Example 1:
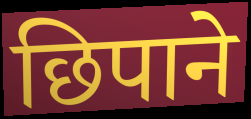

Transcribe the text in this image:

छिपाने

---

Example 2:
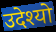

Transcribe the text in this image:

उदेश्यो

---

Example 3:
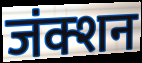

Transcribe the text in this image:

जंक्शन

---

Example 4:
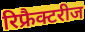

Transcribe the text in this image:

रिफ्रैक्टरीज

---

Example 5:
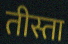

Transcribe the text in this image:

तीस्ता